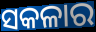
ସକଳାର